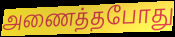
அணைத்தபோது